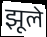
झूले